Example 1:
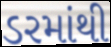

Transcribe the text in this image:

ડરમાંથી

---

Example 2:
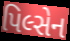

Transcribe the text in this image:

પિલ્સેન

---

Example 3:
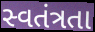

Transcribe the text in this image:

સ્વતંત્રતા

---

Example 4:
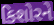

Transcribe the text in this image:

કિશોરને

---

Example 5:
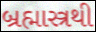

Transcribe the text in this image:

બ્રહ્માસ્ત્રથી